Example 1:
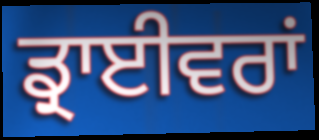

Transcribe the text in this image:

ਡ੍ਰਾਈਵਰਾਂ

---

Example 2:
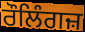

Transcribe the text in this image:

ਰੌਲਿੰਗਜ਼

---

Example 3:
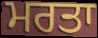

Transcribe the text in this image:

ਮਰਤਾ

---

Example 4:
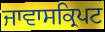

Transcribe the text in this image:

ਜਾਵਾਸਕ੍ਰਿਪਟ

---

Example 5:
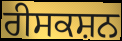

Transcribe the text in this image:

ਰੀਸਕਸ਼ਨ